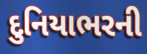
દુનિયાભરની